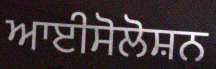
ਆਈਸੋਲੋਸ਼ਨ